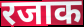
रजाक